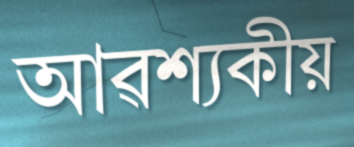
আৱশ্য়কীয়